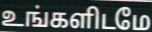
உங்களிடமே